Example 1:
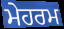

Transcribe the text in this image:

ਮੇਹਰਮ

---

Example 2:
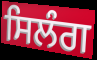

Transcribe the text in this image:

ਸਿਲੰਗ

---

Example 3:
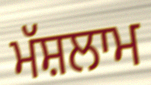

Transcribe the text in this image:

ਮੱਸ਼ਲਾਮ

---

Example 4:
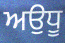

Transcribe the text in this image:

ਅਉਧੂ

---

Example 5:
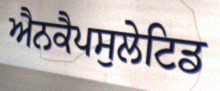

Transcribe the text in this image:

ਐਨਕੈਪਸੁਲੇਟਿਡ